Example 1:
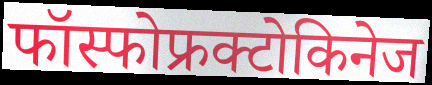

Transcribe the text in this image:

फॉस्फोफ्रक्टोकिनेज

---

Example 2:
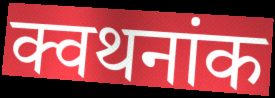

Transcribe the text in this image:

क्वथनांक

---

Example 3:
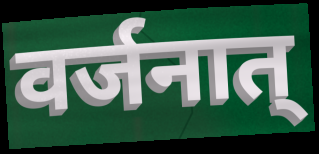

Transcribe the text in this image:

वर्जनात्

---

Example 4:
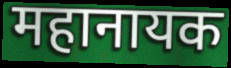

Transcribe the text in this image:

महानायक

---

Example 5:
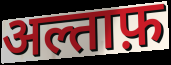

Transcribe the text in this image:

अल्ताफ़